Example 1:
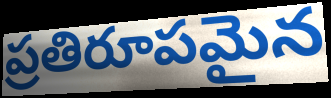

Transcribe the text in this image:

ప్రతిరూపమైన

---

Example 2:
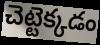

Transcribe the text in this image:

చెట్టెక్కడం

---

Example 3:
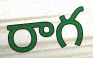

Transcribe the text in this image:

రాగ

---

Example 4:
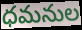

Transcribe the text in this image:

ధమనుల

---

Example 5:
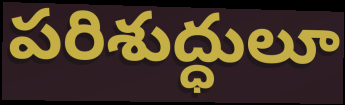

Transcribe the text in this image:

పరిశుద్ధులూ